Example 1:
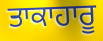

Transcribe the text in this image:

ਤਾਕਾਹਾਰੂ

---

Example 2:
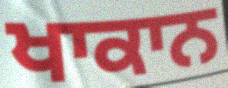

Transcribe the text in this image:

ਖਾਕਾਨ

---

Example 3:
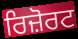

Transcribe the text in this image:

ਰਿਜ਼ੋਰਟ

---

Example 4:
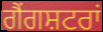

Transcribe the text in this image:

ਗੈਂਗਸ਼ਟਰਾਂ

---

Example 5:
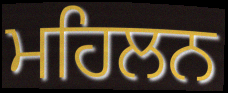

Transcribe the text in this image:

ਮਹਿਲਨ